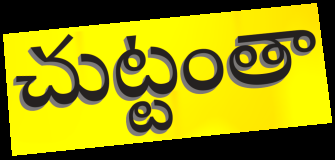
చుట్టంతా